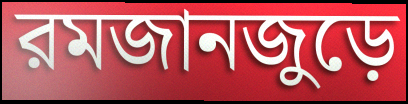
রমজানজুড়ে